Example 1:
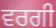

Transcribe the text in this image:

ਵਰਗੀ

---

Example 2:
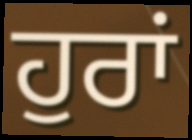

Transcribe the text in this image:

ਹੁਰਾਂ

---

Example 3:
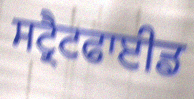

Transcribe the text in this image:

ਸਟ੍ਰੈਟਫਾਈਡ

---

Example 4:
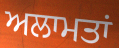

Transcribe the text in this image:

ਅਲਾਮਤਾਂ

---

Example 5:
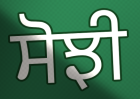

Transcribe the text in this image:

ਸੋਝੀ